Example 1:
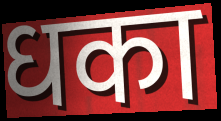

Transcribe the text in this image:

धका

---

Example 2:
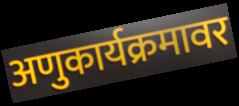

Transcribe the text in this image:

अणुकार्यक्रमावर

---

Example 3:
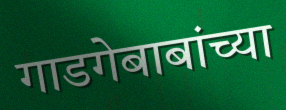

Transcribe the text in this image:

गाडगेबाबांच्या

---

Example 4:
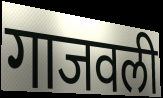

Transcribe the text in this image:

गाजवली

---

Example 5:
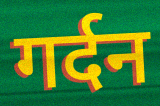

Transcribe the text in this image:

गर्दन